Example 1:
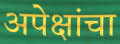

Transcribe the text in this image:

अपेक्षांचा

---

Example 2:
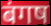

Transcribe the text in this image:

बंगष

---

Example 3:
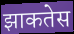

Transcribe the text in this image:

झाकतेस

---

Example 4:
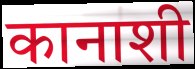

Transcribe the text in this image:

कानाशी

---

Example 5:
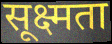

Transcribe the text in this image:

सूक्ष्मता